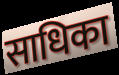
साधिका